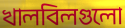
খালবিলগুলো